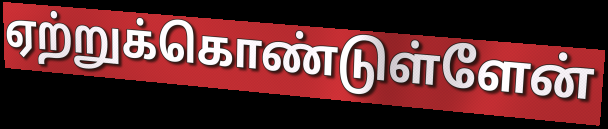
ஏற்றுக்கொண்டுள்ளேன்